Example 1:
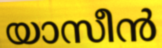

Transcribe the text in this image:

യാസീൻ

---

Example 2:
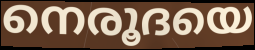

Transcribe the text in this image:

നെരൂദയെ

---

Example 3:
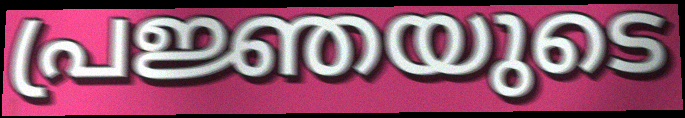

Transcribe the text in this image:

പ്രജ്ഞയുടെ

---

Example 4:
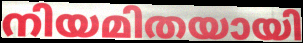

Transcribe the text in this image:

നിയമിതയായി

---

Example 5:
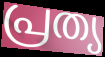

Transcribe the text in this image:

പ്രത്യ